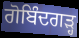
ਗੋਬਿੰਦਗੜ੍ਹ